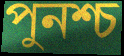
পুনশ্চ